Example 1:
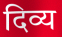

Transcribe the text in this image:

दिव्य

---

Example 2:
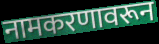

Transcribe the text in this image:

नामकरणावरून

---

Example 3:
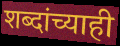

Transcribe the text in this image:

शब्दांच्याही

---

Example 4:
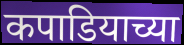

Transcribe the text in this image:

कपाडियाच्या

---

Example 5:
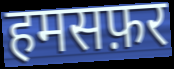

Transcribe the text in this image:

हमसफ़र